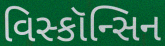
વિસ્કૉન્સિન